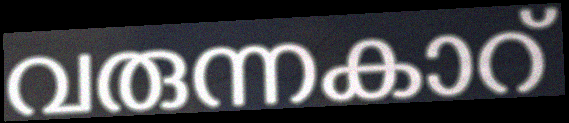
വരുന്നകാറ്